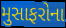
મુસાફરોના